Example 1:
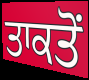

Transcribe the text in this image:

ਤਾਕਤੋਂ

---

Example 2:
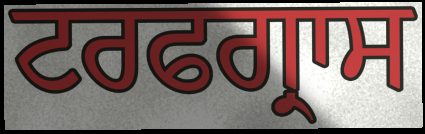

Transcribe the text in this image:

ਟਰਫਗ੍ਰਾਸ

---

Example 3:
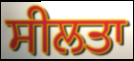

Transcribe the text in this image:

ਸੀਲਤਾ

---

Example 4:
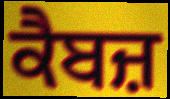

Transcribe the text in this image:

ਕੈਬਜ਼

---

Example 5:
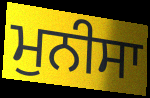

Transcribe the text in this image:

ਮੁਨੀਸਾ